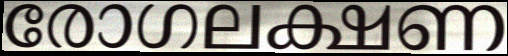
രോഗലക്ഷണ